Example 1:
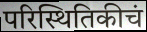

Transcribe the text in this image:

परिस्थितिकीचं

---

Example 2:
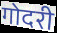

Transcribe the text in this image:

गोदरी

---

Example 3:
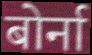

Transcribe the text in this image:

बोर्ना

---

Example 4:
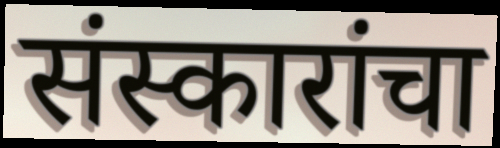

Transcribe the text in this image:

संस्कारांचा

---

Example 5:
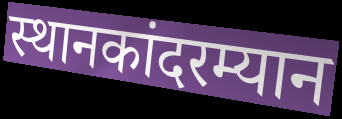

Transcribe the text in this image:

स्थानकांदरम्यान